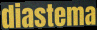
diastema